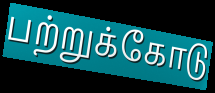
பற்றுக்கோடு